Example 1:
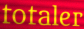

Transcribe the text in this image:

totaler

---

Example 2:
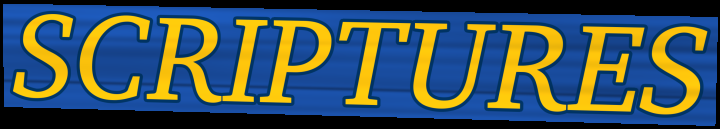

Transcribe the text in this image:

SCRIPTURES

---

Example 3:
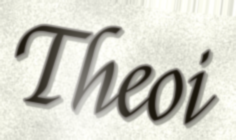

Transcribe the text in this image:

Theoi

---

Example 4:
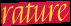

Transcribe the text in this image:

rature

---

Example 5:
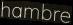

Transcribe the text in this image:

hambre